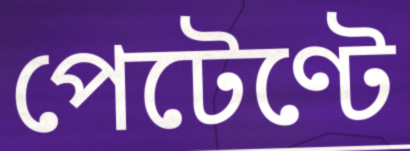
পেটেণ্টে